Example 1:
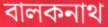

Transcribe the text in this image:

বালকনাথ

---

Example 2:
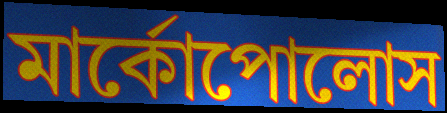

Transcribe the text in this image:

মার্কোপোলোস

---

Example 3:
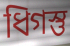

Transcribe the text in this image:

ধিগস্তু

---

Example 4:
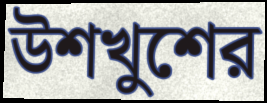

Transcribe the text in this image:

উশখুশের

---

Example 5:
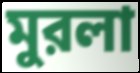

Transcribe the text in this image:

মুরলা